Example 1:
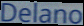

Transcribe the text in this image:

Delano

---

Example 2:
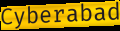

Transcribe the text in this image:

Cyberabad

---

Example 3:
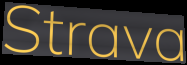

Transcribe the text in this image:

Strava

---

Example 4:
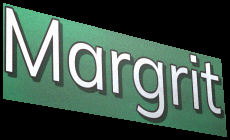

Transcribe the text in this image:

Margrit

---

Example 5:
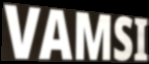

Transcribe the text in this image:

VAMSI